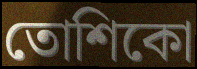
তোশিকো